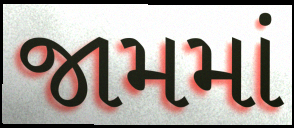
જામમાં